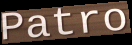
Patro